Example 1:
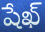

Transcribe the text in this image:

షేఖ్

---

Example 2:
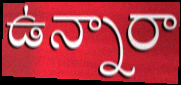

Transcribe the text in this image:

ఉన్నారా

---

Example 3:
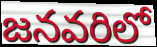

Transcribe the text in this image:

జనవరిలో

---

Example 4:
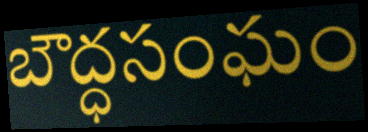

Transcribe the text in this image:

బౌద్ధసంఘం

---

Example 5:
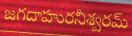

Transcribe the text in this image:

జగదాహురనీశ్వరమ్